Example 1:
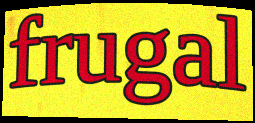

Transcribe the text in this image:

frugal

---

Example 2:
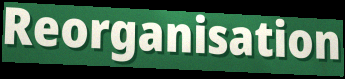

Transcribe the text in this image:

Reorganisation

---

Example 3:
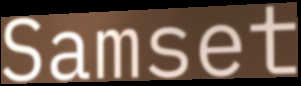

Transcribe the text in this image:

Samset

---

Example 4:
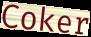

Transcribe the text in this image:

Coker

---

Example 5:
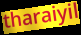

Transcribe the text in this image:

tharaiyil